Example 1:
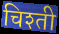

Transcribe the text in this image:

चिश्ती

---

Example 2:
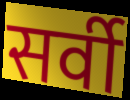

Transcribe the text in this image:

सर्वी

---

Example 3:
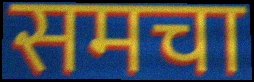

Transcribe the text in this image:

समचा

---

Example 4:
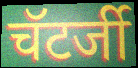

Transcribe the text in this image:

चॅटर्जी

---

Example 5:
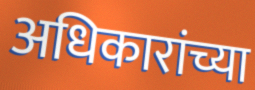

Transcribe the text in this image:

अधिकारांच्या